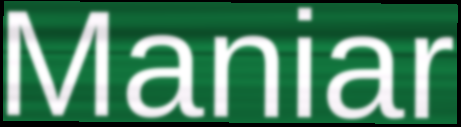
Maniar